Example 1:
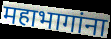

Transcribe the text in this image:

महाभागांना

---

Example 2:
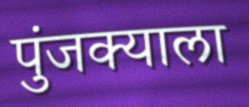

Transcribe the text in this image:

पुंजक्याला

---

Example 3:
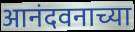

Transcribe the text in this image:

आनंदवनाच्या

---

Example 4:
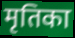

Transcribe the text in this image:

मृतिका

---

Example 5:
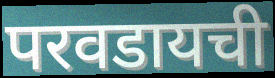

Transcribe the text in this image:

परवडायची